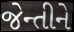
જેન્તીને